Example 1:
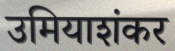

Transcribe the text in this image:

उमियाशंकर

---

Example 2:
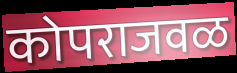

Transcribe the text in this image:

कोपराजवळ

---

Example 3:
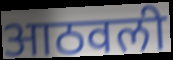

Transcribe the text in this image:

आठवली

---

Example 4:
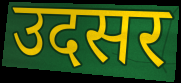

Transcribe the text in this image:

उदसर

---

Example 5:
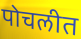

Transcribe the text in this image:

पोचलीत